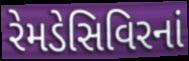
રેમડેસિવિરનાં